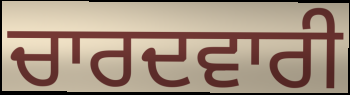
ਚਾਰਦਵਾਰੀ